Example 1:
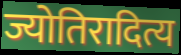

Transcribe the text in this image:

ज्योतिरादित्य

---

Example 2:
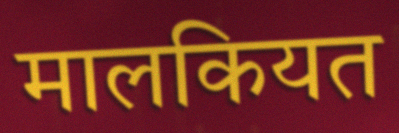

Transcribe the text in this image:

मालकियत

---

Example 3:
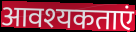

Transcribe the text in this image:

आवश्‍यकताएं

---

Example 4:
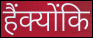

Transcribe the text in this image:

हैंक्योंकि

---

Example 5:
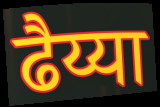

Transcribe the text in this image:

ढैय्या